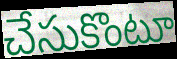
చేసుకొంటూ